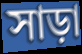
সাড়া